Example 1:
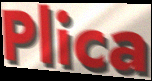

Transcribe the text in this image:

Plica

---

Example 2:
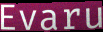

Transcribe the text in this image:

Evaru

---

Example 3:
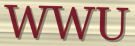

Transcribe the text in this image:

WWU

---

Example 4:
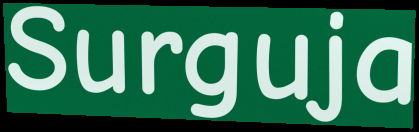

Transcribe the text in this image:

Surguja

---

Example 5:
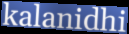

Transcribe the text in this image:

kalanidhi